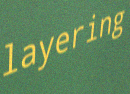
layering